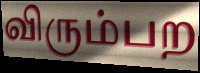
விரும்பற